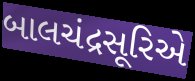
બાલચંદ્રસૂરિએ